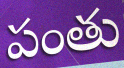
పంతు